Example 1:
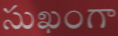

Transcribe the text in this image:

సుఖంగా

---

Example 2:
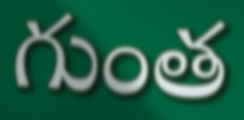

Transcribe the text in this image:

గుంత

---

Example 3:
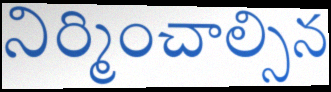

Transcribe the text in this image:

నిర్మించాల్సిన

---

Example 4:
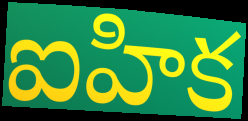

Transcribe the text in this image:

ఐహిక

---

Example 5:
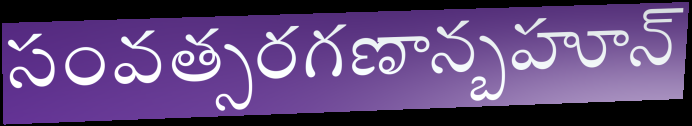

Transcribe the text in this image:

సంవత్సరగణాన్బహూన్